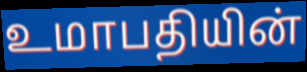
உமாபதியின்